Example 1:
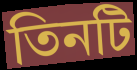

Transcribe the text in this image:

তিনটি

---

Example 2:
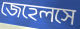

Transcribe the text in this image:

জেহেলসে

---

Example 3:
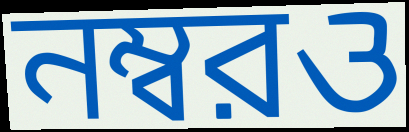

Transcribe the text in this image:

নম্বরও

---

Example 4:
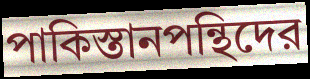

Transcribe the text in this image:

পাকিস্তানপন্থিদের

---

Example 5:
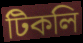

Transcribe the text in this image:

টিকলি